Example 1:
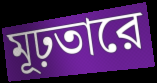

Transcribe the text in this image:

মূঢ়তারে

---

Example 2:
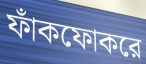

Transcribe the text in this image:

ফাঁকফোকরে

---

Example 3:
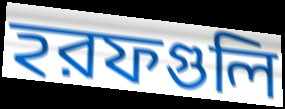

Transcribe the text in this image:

হরফগুলি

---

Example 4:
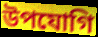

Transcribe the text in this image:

উপযোগি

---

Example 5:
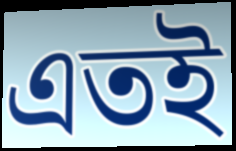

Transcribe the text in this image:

এতই